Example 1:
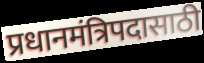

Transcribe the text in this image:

प्रधानमंत्रिपदासाठी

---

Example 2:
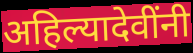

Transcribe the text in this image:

अहिल्यादेवींनी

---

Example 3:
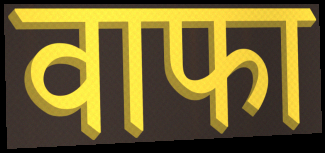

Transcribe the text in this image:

वाफा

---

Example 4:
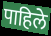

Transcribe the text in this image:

पाहिले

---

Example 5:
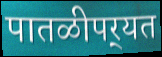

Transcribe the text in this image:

पातळीपर्यत